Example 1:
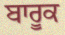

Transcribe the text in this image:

ਬਾਰੂਕ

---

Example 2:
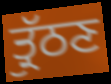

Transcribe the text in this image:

ਤ੍ਰੁੱਠਣ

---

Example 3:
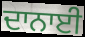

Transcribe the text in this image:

ਦਾਨਾਈ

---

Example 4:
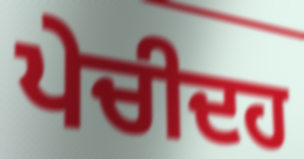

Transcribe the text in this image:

ਪੇਚੀਦਹ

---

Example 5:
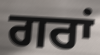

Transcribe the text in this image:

ਗਰਾਂ